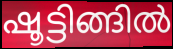
ഷൂട്ടിങ്ങിൽ